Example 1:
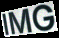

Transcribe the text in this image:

IMG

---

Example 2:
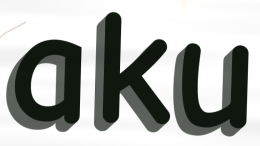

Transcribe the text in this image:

aku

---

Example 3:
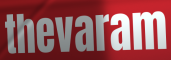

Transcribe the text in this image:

thevaram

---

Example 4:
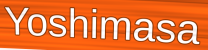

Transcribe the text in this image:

Yoshimasa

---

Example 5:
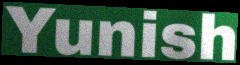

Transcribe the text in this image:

Yunish